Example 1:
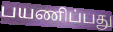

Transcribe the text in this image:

பயணிப்பது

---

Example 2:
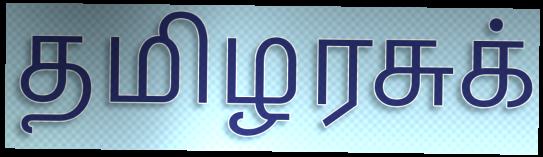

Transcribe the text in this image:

தமிழரசுக்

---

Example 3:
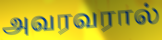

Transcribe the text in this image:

அவரவரால்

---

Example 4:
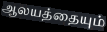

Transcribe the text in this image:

ஆலயத்தையும்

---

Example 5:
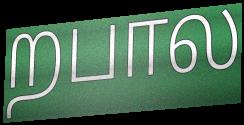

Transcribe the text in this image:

றபால